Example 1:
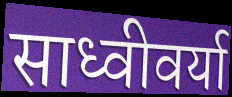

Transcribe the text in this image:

साध्वीवर्या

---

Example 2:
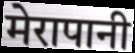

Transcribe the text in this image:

मेरापानी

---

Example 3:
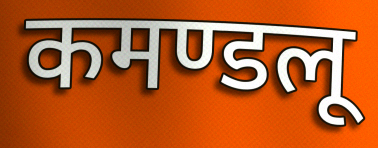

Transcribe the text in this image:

कमण्डलू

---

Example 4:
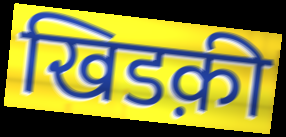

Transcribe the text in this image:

खिडक़ी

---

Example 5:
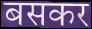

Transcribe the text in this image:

बसकर